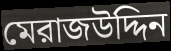
মেরাজউদ্দিন